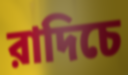
রাদিচে